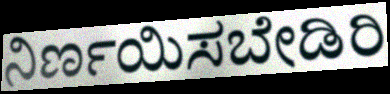
ನಿರ್ಣಯಿಸಬೇಡಿರಿ